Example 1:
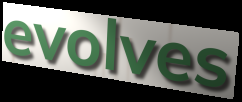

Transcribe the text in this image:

evolves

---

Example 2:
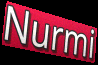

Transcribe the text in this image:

Nurmi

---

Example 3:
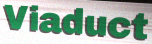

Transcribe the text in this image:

Viaduct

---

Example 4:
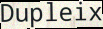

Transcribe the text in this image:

Dupleix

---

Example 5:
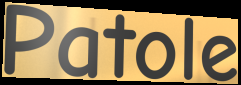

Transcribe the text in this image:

Patole